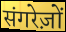
संगरेज़ों